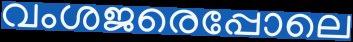
വംശജരെപ്പോലെ